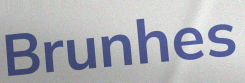
Brunhes